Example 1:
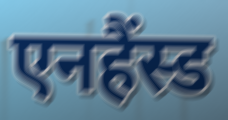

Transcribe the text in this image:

एनहैंस्ड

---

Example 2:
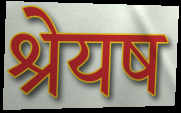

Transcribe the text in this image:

श्रेयष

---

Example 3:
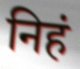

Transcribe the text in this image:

निहं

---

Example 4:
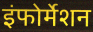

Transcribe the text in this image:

इंफोर्मेशन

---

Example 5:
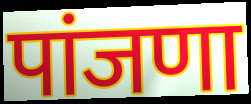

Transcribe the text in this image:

पांजणा